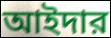
আইদার